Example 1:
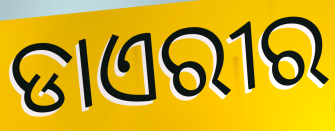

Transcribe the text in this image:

ଡାଏରୀର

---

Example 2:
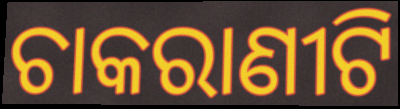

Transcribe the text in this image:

ଚାକରାଣୀଟି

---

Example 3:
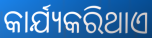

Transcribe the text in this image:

କାର୍ଯ୍ୟକରିଥାଏ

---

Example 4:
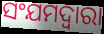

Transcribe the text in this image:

ସଂଯମଦ୍ୱାରା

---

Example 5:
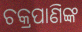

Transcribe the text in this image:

ଚକ୍ରପାଣିଙ୍କ